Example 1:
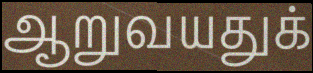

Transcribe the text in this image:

ஆறுவயதுக்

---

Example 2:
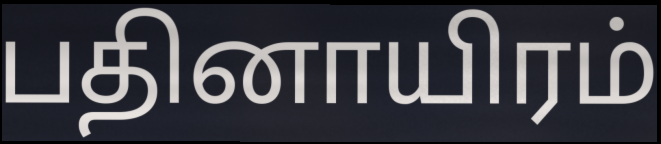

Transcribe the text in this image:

பதினாயிரம்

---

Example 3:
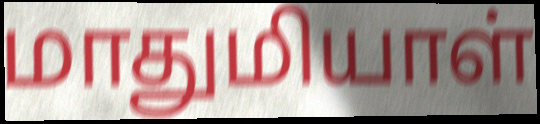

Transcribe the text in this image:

மாதுமியாள்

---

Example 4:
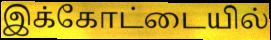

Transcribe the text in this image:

இக்கோட்டையில்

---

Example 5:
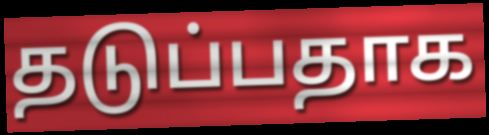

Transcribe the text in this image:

தடுப்பதாக